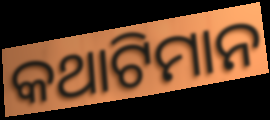
କଥାଟିମାନ